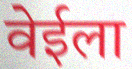
वेईला